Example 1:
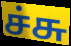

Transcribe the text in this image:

ச்சு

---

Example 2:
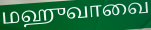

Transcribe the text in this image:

மஹுவாவை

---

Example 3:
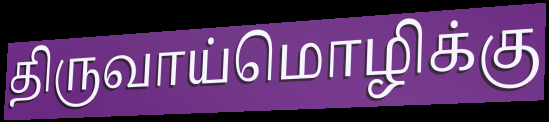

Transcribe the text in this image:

திருவாய்மொழிக்கு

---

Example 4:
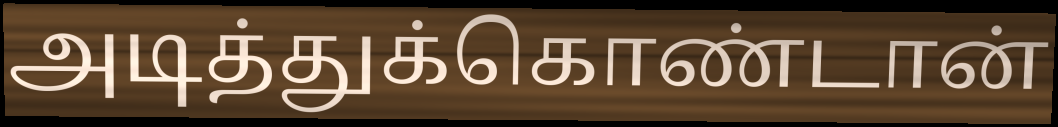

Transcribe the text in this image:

அடித்துக்கொண்டான்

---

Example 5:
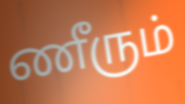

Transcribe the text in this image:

ணீரும்